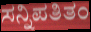
ಸನ್ನಿಪತಿತಂ